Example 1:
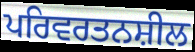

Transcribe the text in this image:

ਪਰਿਵਰਤਨਸ਼ੀਲ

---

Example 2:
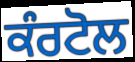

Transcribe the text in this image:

ਕੰਰਟੋਲ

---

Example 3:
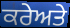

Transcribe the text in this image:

ਕਰੇਅਤੇ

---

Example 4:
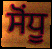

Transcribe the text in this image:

ਸੋਂਧੂ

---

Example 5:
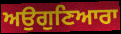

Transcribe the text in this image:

ਅਉਗੁਣਿਆਰਾ